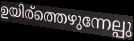
ഉയിര്ത്തെഴുന്നേല്പു